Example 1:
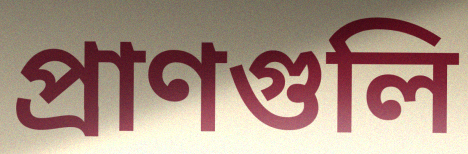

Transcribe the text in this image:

প্রাণগুলি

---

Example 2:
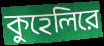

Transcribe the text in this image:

কুহেলিরে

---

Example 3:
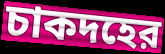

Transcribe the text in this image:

চাকদহের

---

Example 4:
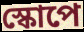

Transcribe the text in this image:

স্কোপে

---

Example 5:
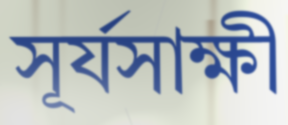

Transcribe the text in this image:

সূর্যসাক্ষী